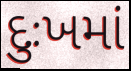
દુઃખમાં